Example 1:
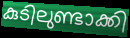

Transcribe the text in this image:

കുടിലുണ്ടാക്കി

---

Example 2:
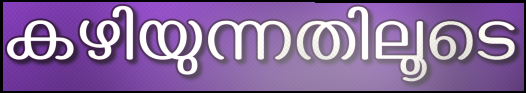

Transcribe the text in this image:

കഴിയുന്നതിലൂടെ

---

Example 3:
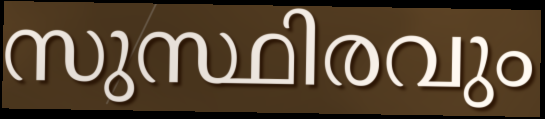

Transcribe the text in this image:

സുസ്ഥിരവും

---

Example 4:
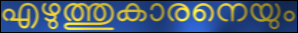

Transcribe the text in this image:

എഴുത്തുകാരനെയും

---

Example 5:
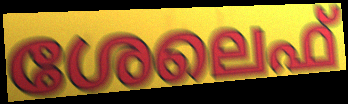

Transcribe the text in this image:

ശേലെഫ്